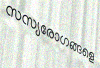
സസ്യരോഗങ്ങളെ